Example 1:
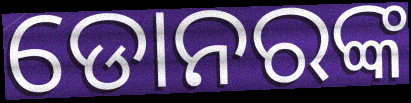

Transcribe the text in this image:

ଡୋନରଙ୍କ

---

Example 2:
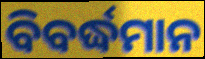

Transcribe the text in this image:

ବିବର୍ଦ୍ଧମାନ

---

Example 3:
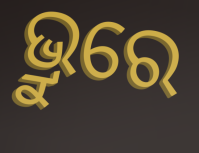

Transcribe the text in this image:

ଭ୍ରୁରେ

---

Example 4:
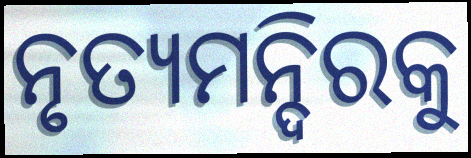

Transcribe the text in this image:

ନୃତ୍ୟମନ୍ଦିରକୁ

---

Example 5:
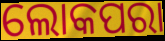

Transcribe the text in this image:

ଲୋକପରା